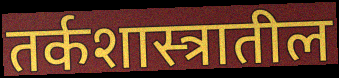
तर्कशास्त्रातील